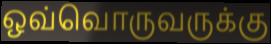
ஒவ்வொருவருக்கு